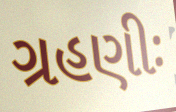
ગ્રહણીઃ